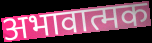
अभावात्मक